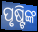
ପୃଷ୍ଟିଙ୍କ